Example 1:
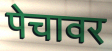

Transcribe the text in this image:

पेचावर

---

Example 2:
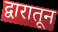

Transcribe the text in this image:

द्वारातून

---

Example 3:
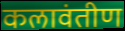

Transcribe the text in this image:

कलावंतीण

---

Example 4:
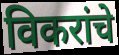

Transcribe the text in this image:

विकरांचे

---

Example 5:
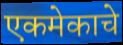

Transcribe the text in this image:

एकमेकाचे